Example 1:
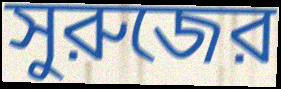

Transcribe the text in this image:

সুরুজের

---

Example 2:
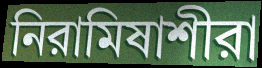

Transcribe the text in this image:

নিরামিষাশীরা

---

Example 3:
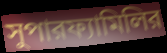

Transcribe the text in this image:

সুপারফ্যামিলির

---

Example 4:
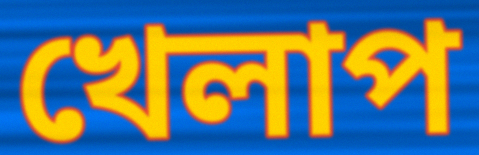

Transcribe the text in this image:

খেলাপ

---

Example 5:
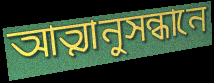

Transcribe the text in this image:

আত্মানুসন্ধানে